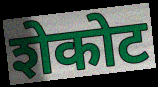
शेकोट